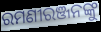
ରମଣୀରଞ୍ଜନଙ୍କୁ